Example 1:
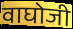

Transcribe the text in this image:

वाघोजी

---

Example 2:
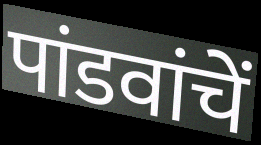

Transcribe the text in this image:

पांडवांचें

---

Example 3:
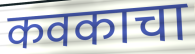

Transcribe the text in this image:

कवकाचा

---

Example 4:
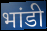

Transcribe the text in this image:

भांडी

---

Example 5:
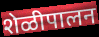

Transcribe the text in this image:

शेळीपालन